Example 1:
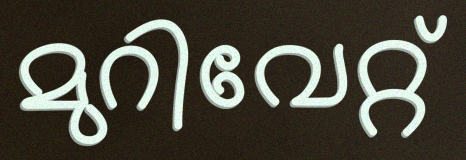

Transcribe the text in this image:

മുറിവേറ്റ്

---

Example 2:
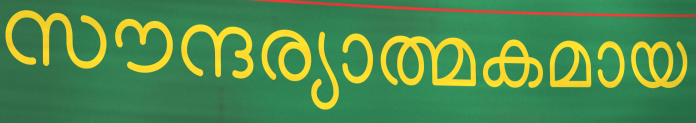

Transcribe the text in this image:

സൗന്ദര്യാത്മകമായ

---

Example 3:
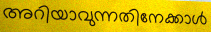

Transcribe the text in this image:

അറിയാവുന്നതിനേക്കാൾ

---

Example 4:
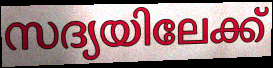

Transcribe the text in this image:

സദ്യയിലേക്ക്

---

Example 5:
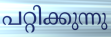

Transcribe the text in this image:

പറ്റിക്കുന്നു